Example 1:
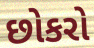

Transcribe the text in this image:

છોકરો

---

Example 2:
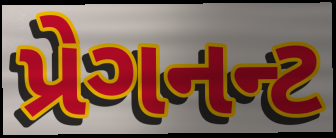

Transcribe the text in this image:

પ્રેગનન્ટ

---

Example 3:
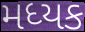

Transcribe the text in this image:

મધ્યક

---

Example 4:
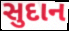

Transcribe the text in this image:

સુદાન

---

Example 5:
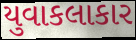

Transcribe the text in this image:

યુવાકલાકાર